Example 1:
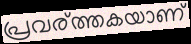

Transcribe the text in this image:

പ്രവര്ത്തകയാണ്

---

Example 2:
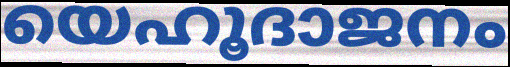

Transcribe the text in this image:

യെഹൂദാജനം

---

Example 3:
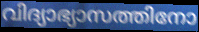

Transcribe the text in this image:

വിദ്യാഭ്യാസത്തിനോ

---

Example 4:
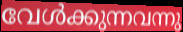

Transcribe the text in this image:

വേൾക്കുന്നവന്നു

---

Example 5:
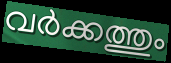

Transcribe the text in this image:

വർക്കത്തും